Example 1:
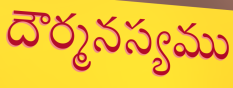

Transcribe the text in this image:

దౌర్మనస్యము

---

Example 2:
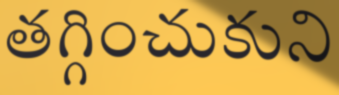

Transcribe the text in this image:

తగ్గించుకుని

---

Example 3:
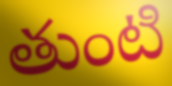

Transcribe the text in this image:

తుంటి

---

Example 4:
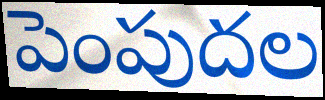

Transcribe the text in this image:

పెంపుదల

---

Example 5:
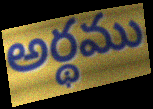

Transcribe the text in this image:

అర్థము